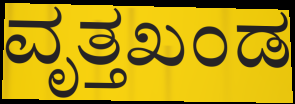
ವೃತ್ತಖಂಡ